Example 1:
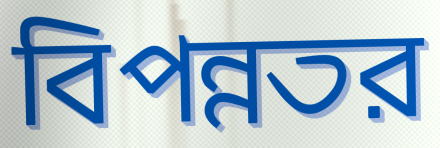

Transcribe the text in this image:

বিপন্নতর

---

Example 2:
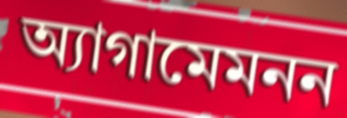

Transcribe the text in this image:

অ্যাগামেমনন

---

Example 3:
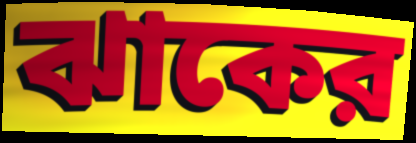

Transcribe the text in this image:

ঝাকের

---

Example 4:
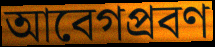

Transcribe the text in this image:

আবেগপ্রবণ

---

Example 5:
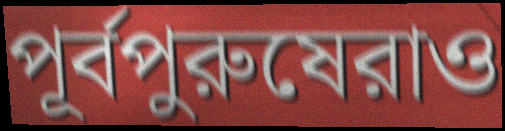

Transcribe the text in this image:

পূর্বপুরুষেরাও